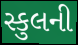
સ્કુલની